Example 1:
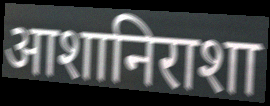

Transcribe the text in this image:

आशानिराशा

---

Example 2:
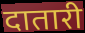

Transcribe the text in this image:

दातारी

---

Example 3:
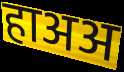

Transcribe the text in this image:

हाअअ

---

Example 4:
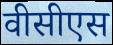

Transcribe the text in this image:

वीसीएस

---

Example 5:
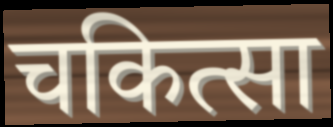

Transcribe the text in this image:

चकित्सा